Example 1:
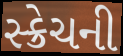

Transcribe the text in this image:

સ્ક્રેચની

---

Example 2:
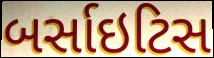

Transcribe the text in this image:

બર્સાઇટિસ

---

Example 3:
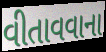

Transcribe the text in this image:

વીતાવવાના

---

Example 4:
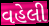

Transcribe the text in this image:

વહેલી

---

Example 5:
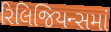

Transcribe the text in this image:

રિલિજિયન્સમાં